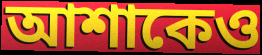
আশাকেও